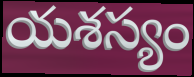
యశస్యం